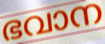
ഭവാന